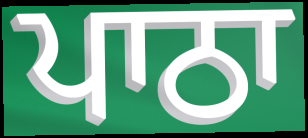
ਪਾਠਾ